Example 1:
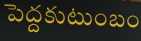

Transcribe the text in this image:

పెద్దకుటుంబం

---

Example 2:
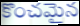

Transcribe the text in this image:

కొంచమైన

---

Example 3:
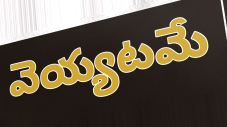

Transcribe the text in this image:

వెయ్యటమే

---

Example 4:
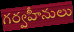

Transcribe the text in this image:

గర్వహీనులు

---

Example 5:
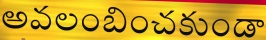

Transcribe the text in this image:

అవలంబించకుండా